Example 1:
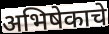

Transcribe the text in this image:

अभिषेकाचे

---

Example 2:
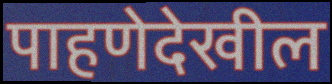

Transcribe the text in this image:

पाहणेदेखील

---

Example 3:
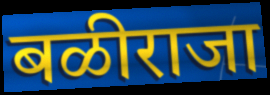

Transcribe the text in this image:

बळीराजा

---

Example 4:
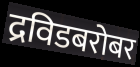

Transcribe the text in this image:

द्रविडबरोबर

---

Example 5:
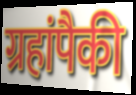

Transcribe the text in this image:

ग्रहांपैकी